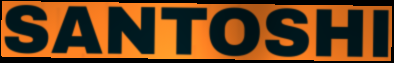
SANTOSHI